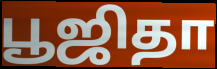
பூஜிதா